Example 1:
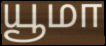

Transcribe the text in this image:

யூமா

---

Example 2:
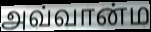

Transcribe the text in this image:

அவ்வான்ம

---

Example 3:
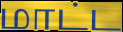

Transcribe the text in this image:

மாட்ட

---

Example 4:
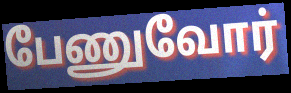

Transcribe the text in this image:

பேணுவோர்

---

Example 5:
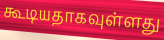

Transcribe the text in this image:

கூடியதாகவுள்ளது